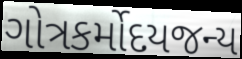
ગોત્રકર્મોદયજન્ય